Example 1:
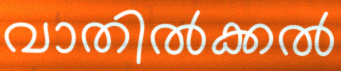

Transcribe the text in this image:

വാതിൽക്കൽ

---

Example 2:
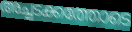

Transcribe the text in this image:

അച്ചടക്കത്തോടെ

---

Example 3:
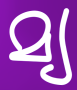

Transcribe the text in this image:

മ്യ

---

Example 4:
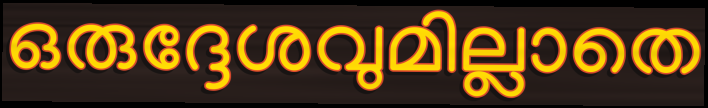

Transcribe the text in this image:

ഒരുദ്ദേശവുമില്ലാതെ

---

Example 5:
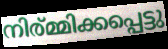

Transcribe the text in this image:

നിര്മ്മിക്കപ്പെട്ടു